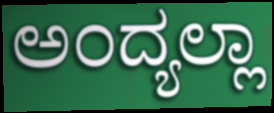
ಅಂದ್ಯಲ್ಲಾ